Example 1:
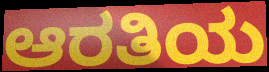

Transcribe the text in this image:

ಆರತಿಯ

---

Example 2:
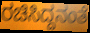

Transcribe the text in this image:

ರಚಿಸಿದ್ದನಂತೆ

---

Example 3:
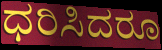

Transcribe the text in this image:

ಧರಿಸಿದರೂ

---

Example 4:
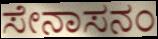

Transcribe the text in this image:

ಸೇನಾಸನಂ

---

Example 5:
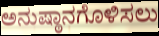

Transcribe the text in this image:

ಅನುಷ್ಠಾನಗೊಳಿಸಲು